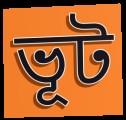
ভূট